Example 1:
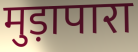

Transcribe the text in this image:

मुड़ापारा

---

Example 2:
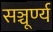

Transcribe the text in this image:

सञ्चूर्ण्य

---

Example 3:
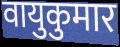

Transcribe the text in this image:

वायुकुमार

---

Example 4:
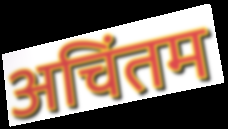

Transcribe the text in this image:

अचिंतम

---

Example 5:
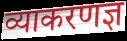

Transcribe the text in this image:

व्याकरणज्ञ